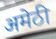
अमेठी